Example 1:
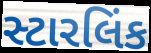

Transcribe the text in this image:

સ્ટારલિંક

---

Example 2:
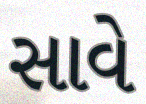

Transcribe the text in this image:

સાવે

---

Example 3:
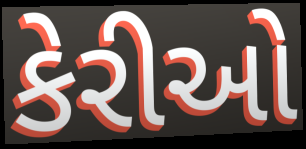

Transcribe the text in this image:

કેરીઓ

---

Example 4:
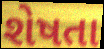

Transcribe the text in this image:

શેષતા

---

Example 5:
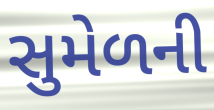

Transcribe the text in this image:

સુમેળની